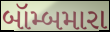
બૉમ્બમારા